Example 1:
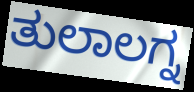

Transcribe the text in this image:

ತುಲಾಲಗ್ನ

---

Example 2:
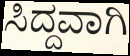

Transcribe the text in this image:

ಸಿದ್ದವಾಗಿ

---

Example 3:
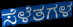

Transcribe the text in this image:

ಸೆಳೆತಗಳ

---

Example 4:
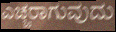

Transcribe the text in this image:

ಎಚ್ಚರಾಗುವುದು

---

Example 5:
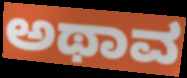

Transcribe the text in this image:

ಅಥಾವ